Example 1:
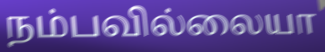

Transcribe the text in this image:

நம்பவில்லையா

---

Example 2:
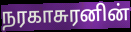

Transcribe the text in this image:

நரகாசுரனின்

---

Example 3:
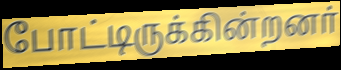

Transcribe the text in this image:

போட்டிருக்கின்றனர்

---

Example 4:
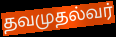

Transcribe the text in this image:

தவமுதல்வர்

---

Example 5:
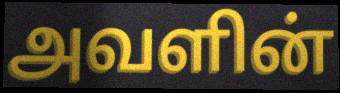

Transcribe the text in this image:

அவளின்